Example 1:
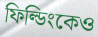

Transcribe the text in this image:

ফিল্ডিংকেও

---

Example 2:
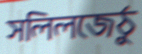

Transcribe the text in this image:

সলিলজেঠু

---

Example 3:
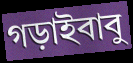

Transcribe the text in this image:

গড়াইবাবু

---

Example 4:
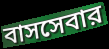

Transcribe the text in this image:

বাসসেবার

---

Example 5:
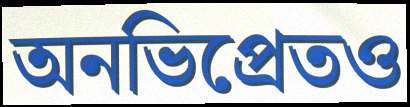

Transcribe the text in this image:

অনভিপ্রেতও